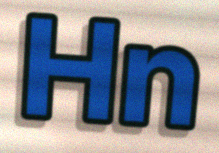
Hn